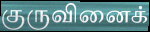
குருவினைக்